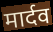
मार्दव